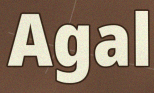
Agal